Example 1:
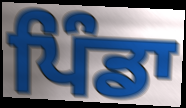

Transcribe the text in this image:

ਪਿੰਡਾ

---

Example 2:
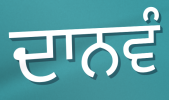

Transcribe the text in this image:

ਦਾਨਵੰ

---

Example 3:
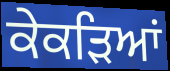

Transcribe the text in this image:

ਕੇਕੜਿਆਂ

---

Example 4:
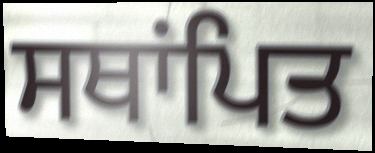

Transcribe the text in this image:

ਸਥਾਂਪਿਤ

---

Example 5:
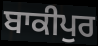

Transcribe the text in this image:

ਬਾਕੀਪੁਰ